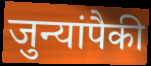
जुन्यांपैकी